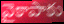
వైకాపాకు